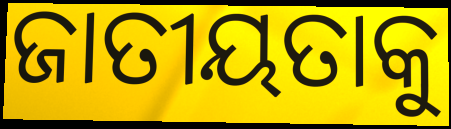
ଜାତୀୟତାକୁ